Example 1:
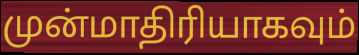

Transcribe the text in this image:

முன்மாதிரியாகவும்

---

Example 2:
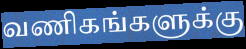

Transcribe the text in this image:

வணிகங்களுக்கு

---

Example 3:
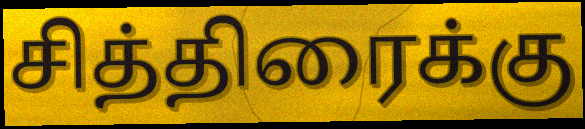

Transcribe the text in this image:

சித்திரைக்கு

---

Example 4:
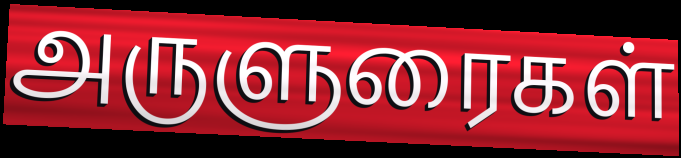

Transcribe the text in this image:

அருளுரைகள்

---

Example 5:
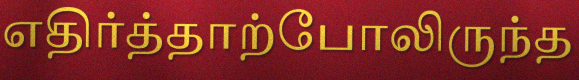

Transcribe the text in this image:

எதிர்த்தாற்போலிருந்த